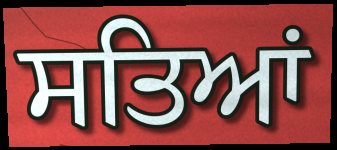
ਸਤਿਆਂ